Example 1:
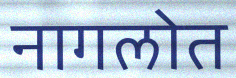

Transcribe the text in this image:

नागलोत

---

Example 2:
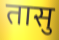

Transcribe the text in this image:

तासु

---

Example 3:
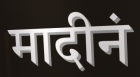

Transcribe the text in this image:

मादीनं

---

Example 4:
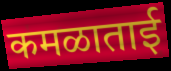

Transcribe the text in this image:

कमळाताई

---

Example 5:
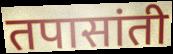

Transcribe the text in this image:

तपासांती